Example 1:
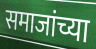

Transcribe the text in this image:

समाजांच्या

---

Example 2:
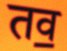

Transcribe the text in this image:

तव॒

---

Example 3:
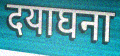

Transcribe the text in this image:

दयाघना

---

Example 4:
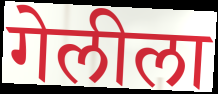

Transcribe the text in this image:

गेलीला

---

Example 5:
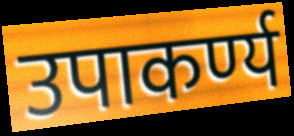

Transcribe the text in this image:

उपाकर्ण्य